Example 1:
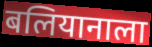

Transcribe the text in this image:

बलियानाला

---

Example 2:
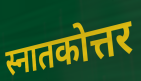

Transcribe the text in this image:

स्नातकोत्तर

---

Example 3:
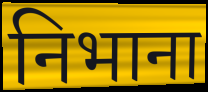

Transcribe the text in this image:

निभाना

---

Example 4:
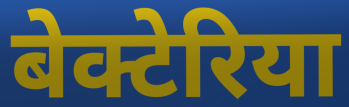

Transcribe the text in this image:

बेक्टेरिया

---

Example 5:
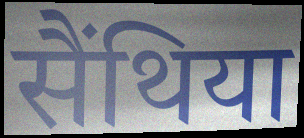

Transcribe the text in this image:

सैंथिया